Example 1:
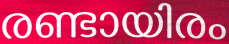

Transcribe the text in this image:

രണ്ടായിരം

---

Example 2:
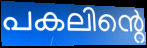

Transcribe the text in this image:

പകലിന്റെ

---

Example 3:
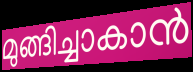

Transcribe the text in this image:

മുങ്ങിച്ചാകാൻ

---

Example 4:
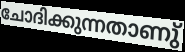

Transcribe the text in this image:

ചോദിക്കുന്നതാണു്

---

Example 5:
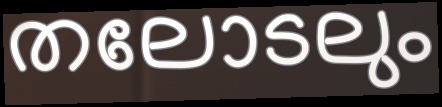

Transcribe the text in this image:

തലോടലും